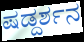
ಷಡ್ದರ್ಶನ